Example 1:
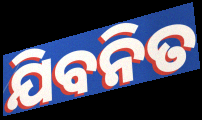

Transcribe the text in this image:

ଯିବନିତ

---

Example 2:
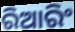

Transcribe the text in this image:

ରିଆରିଂ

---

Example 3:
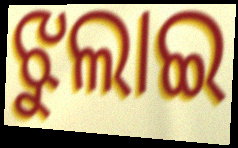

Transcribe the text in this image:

ଝୁଲାଇ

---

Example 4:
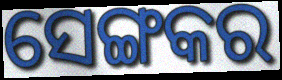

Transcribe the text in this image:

ସେଙ୍ଗକର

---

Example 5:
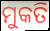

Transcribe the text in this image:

ମୁକତି